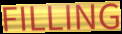
FILLING